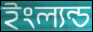
ইংল্যন্ড